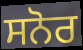
ਸਨੋਰ